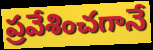
ప్రవేశించగానే